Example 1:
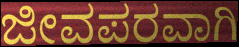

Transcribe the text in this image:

ಜೀವಪರವಾಗಿ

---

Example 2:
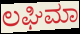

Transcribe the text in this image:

ಲಘಿಮಾ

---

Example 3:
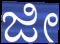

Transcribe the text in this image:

ಜೀ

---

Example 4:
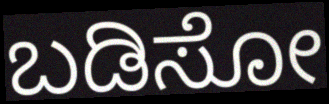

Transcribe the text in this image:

ಬಡಿಸೋ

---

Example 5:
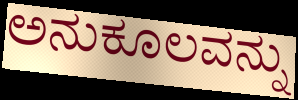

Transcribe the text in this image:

ಅನುಕೂಲವನ್ನು